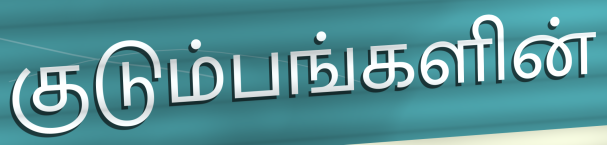
குடும்பங்களின்